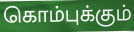
கொம்புக்கும்